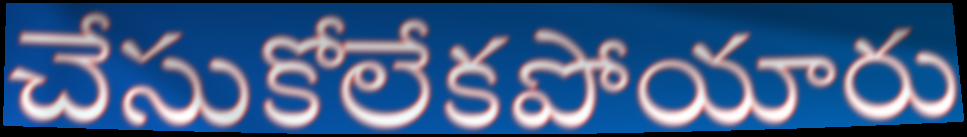
చేసుకోలేకపోయారు